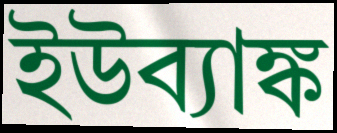
ইউব্যাঙ্ক